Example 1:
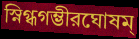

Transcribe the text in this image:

স্নিগ্ধগম্ভীরঘোষম্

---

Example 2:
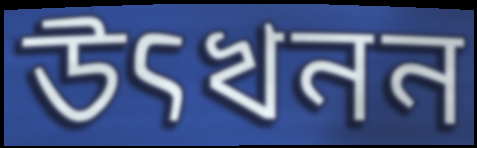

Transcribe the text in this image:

উৎখনন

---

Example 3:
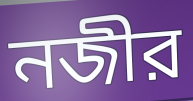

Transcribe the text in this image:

নজীর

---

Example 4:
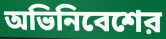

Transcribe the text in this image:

অভিনিবেশের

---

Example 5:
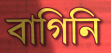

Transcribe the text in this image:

বাগিনি